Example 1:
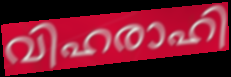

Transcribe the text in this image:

വിഹരാഹി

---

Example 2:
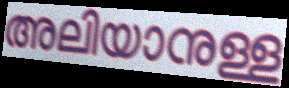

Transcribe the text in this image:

അലിയാനുള്ള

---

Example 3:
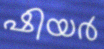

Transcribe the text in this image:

ഷിയർ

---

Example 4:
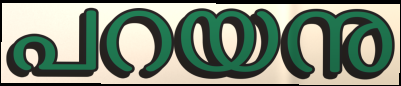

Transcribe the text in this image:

പറയനു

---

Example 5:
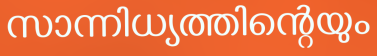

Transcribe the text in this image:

സാന്നിധ്യത്തിന്റെയും